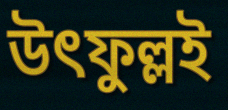
উৎফুল্লই